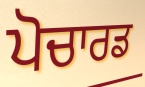
ਪੋਚਾਰਡ